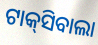
ଟାକ୍‌ସିବାଲା